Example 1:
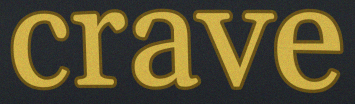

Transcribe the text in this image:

crave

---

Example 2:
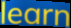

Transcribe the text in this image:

learn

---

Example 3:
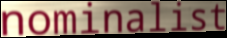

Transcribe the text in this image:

nominalist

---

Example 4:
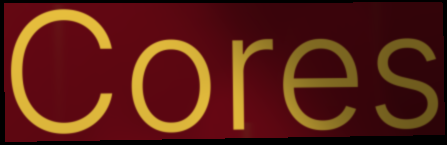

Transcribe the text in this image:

Cores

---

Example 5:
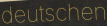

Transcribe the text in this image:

deutschen